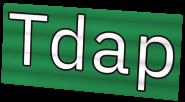
Tdap